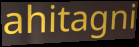
ahitagni